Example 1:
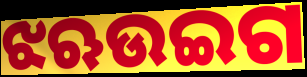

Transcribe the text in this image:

ଝଋଉଇଗ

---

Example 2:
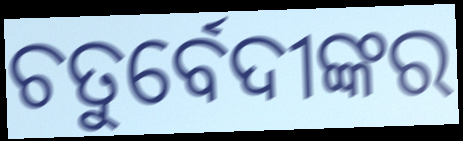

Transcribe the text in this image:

ଚତୁର୍ବେଦୀଙ୍କର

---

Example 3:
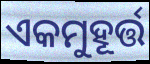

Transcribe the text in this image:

ଏକମୁହୂର୍ତ୍ତ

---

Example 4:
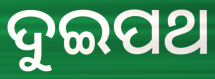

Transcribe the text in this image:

ଦୁଇପଥ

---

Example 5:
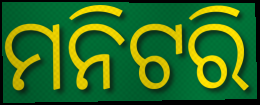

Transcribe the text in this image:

ମନିଟରି